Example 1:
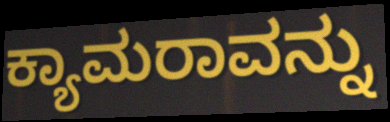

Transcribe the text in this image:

ಕ್ಯಾಮರಾವನ್ನು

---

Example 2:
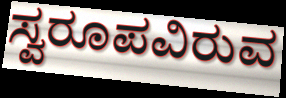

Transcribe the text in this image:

ಸ್ವರೂಪವಿರುವ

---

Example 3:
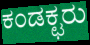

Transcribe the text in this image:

ಕಂಡಕ್ಟರು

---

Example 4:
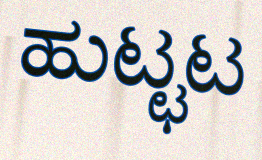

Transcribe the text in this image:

ಹುಟ್ಟಟ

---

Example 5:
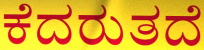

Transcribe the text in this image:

ಕೆದರುತದೆ